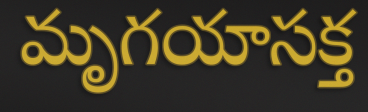
మృగయాసక్త